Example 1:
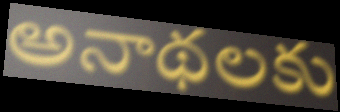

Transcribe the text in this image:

అనాథలకు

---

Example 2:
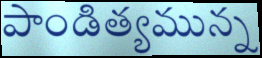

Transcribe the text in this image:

పాండిత్యమున్న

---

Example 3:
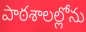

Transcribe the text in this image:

పాఠశాలల్లోను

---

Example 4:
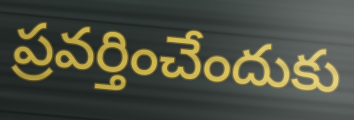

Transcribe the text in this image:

ప్రవర్తించేందుకు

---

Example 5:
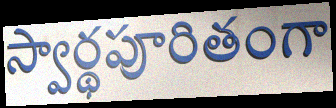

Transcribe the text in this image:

స్వార్థపూరితంగా